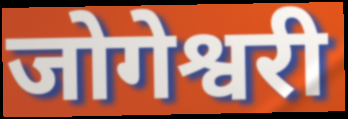
जोगेश्वरी